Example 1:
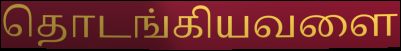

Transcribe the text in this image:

தொடங்கியவளை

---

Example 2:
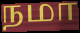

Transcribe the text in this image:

நமா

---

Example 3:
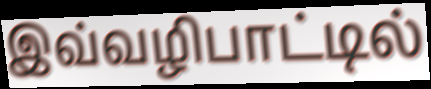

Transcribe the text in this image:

இவ்வழிபாட்டில்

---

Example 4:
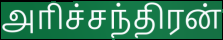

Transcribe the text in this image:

அரிச்சந்திரன்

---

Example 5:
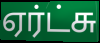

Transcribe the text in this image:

ஏர்ட்சு